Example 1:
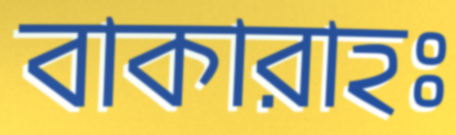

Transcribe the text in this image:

বাকারাহঃ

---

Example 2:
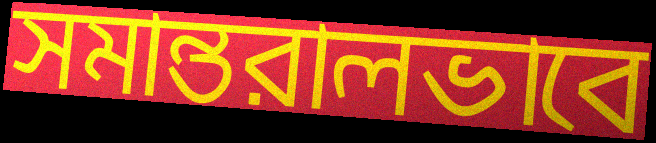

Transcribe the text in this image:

সমান্তরালভাবে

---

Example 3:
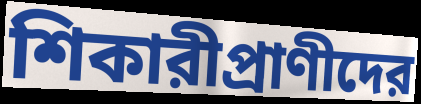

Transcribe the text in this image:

শিকারীপ্রাণীদের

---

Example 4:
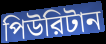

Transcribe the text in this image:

পিউরিটান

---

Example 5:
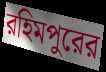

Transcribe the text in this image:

রহিমপুরের